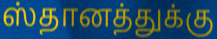
ஸ்தானத்துக்கு